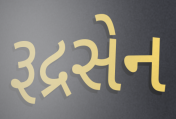
રૂદ્રસેન